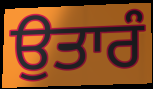
ਉਤਾਰੰ